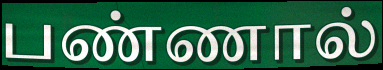
பண்ணால்